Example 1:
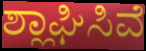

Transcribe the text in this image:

ಶ್ಲಾಘಿಸಿವೆ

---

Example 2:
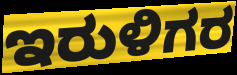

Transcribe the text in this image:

ಇರುಳಿಗರ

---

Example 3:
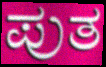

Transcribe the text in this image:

ಪುತ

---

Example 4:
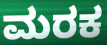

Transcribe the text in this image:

ಮರಕ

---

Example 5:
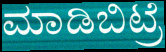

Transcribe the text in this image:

ಮಾಡಿಬಿಟ್ರೆ